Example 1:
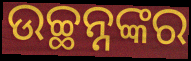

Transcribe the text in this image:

ଉଚ୍ଛନ୍ନଙ୍କର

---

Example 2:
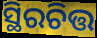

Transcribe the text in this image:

ସ୍ଥିରଚିତ୍ତ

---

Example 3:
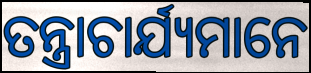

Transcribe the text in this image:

ତନ୍ତ୍ରାଚାର୍ଯ୍ୟମାନେ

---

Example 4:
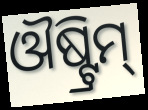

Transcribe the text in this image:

ଔଷ୍ଟ୍ରିମ୍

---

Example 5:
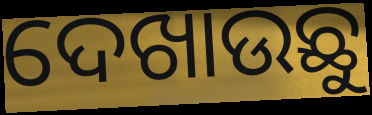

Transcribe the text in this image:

ଦେଖାଉଛୁ